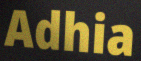
Adhia